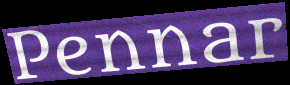
Pennar